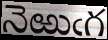
నెఱుఁగ